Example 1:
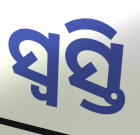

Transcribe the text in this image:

ସ୍ଵସ୍ତି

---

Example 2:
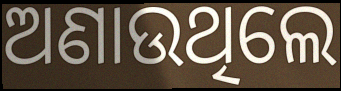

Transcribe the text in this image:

ଅଣାଉଥିଲେ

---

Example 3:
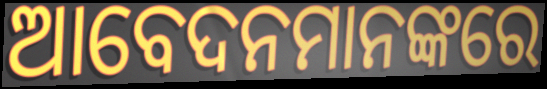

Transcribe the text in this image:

ଆବେଦନମାନଙ୍କରେ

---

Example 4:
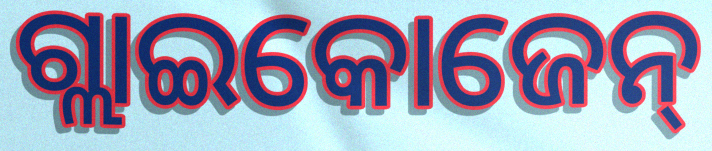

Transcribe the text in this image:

ଗ୍ଲାଇକୋଜେନ୍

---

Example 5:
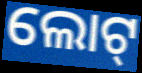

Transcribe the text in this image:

ଲୋଟ୍